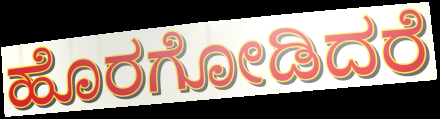
ಹೊರಗೋಡಿದರೆ